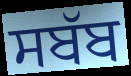
ਸਬੱਬ